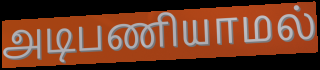
அடிபணியாமல்